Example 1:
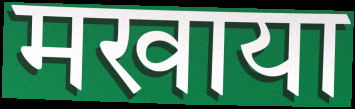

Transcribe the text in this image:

मखाया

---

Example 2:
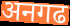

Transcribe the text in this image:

अनगढ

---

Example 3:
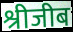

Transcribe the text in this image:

श्रीजीब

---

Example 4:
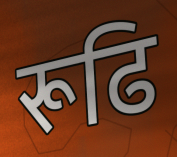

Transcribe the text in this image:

रूढि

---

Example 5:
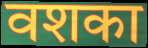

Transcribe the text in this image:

वशका